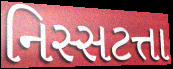
નિસ્સટત્તા